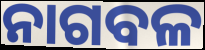
ନାଗବଳ